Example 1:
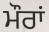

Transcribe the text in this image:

ਮੌਰਾਂ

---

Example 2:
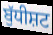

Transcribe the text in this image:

ਬੁੱਧੀਸ਼ਟ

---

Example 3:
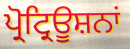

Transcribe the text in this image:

ਪ੍ਰੋਟ੍ਰਿਊਸ਼ਨਾਂ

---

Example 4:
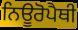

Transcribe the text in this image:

ਨਿਊਰੋਪੈਥੀ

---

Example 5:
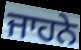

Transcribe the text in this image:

ਜਾਹਨੇ